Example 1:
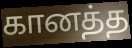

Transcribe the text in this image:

கானத்த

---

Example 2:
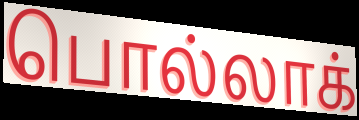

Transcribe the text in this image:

பொல்லாக்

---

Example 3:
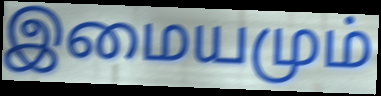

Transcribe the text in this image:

இமையமும்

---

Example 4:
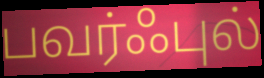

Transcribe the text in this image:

பவர்ஃபுல்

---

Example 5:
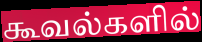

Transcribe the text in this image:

கூவல்களில்